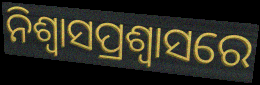
ନିଶ୍ୱାସପ୍ରଶ୍ୱାସରେ